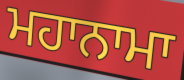
ਮਹਾਨਾਮਾ